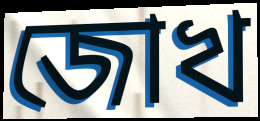
জোখ